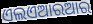
ଏଲଏଆରଆର